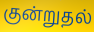
குன்றுதல்